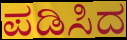
ಪಡಿಸಿದ